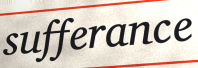
sufferance